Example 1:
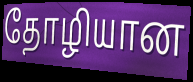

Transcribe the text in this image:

தோழியான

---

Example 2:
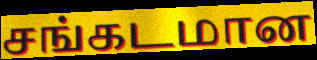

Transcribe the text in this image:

சங்கடமான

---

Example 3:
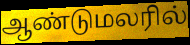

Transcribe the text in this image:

ஆண்டுமலரில்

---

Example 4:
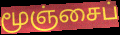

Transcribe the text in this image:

மூஞ்சைப்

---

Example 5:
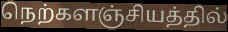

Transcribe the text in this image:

நெற்களஞ்சியத்தில்